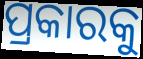
ପ୍ରକାରକୁ